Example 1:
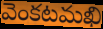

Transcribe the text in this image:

వెంకటమఖి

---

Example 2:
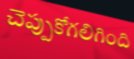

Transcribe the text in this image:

చెప్పుకోగలిగింది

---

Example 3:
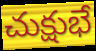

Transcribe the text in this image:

చుక్షుభే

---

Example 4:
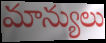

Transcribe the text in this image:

మాన్యులు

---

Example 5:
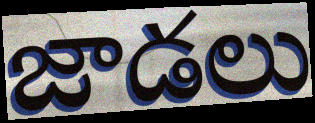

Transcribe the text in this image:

జాడలు